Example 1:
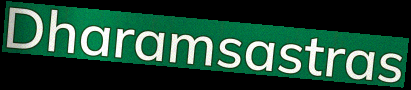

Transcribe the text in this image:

Dharamsastras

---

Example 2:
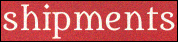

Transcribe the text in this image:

shipments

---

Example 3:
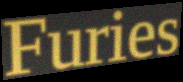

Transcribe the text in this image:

Furies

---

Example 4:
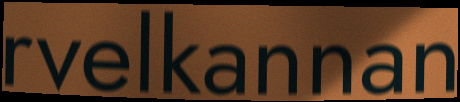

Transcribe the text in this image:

rvelkannan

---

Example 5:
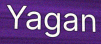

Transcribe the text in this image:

Yagan